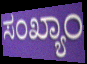
ಸಂಖ್ಯಾಂ